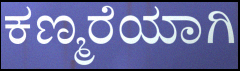
ಕಣ್ಮರೆಯಾಗಿ